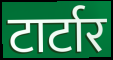
टार्टार